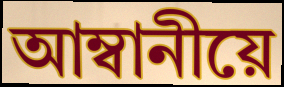
আম্বানীয়ে